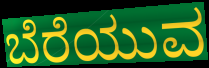
ಬೆರೆಯುವ